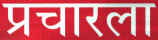
प्रचारला